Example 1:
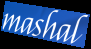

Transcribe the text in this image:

mashal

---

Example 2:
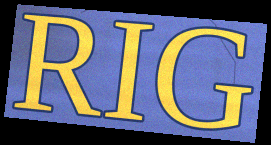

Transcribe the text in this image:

RIG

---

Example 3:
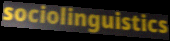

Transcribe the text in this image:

sociolinguistics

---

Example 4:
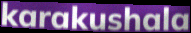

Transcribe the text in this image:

karakushala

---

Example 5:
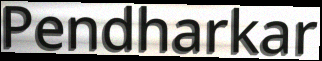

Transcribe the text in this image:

Pendharkar